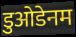
डुओडेनम